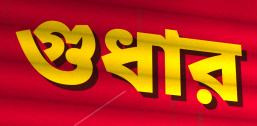
গুধার